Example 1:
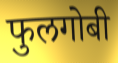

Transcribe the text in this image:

फुलगोबी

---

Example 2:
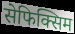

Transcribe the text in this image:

सेफिक्सिम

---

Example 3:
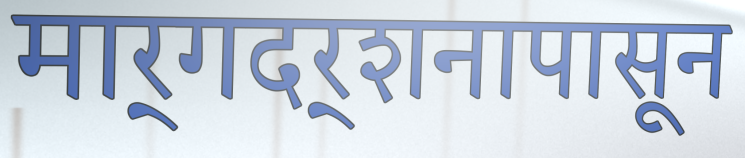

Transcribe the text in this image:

मार्गदर्शनापासून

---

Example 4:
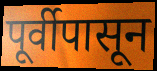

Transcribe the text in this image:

पूर्वीपासून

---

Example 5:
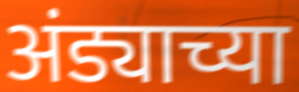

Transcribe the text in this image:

अंड्याच्या